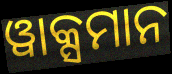
ୱାକ୍ସମାନ